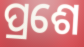
ପ୍ରଶେ